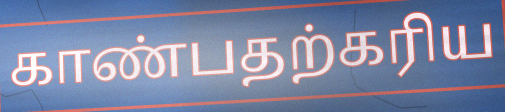
காண்பதற்கரிய